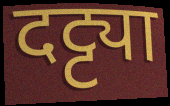
दट्ट्या